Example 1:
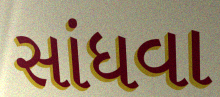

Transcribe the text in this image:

સાંધવા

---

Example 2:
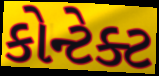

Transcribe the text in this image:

કોન્ટેક્ટ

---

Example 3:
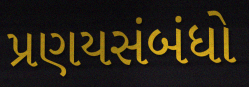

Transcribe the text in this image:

પ્રણયસંબંધો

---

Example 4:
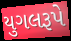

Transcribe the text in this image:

યુગલરૂપે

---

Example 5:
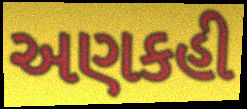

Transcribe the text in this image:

અણકહી